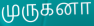
முருகனா